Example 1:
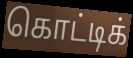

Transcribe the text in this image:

கொட்டிக்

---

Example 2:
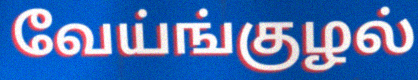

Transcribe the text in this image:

வேய்ங்குழல்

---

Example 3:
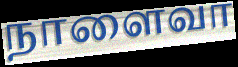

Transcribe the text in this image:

நாளைவா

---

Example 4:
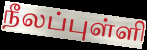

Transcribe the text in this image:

நீலப்புள்ளி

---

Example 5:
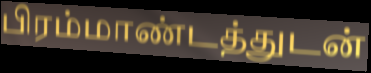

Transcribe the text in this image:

பிரம்மாண்டத்துடன்